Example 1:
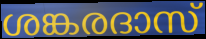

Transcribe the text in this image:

ശങ്കരദാസ്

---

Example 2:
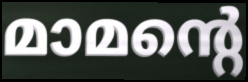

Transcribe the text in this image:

മാമന്റെ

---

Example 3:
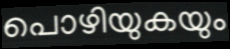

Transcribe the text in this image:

പൊഴിയുകയും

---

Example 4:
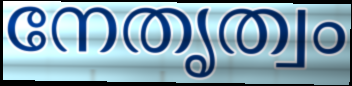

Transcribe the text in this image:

നേതൃത്വം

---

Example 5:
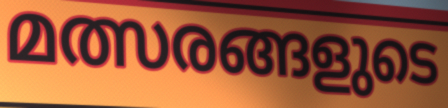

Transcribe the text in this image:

മത്സരങ്ങളുടെ